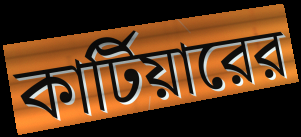
কার্টিয়ারের